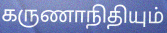
கருணாநிதியும்